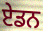
ਏਡਨ